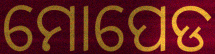
ମୋପେଡ